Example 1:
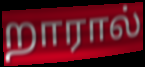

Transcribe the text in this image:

றாரால்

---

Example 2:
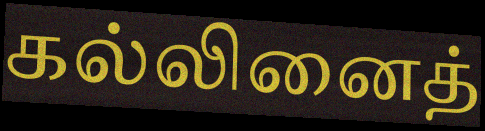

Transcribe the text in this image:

கல்லினைத்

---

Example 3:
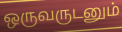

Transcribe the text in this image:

ஒருவருடனும்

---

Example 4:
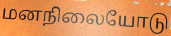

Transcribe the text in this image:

மனநிலையோடு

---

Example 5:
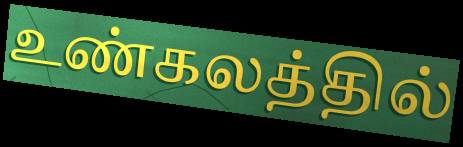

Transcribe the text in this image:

உண்கலத்தில்